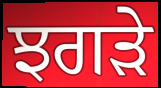
ਝਗਡ਼ੇ